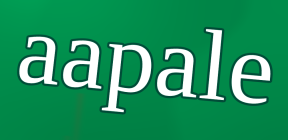
aapale